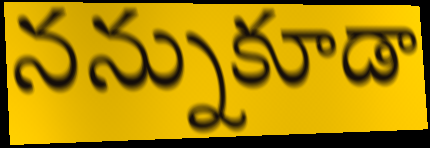
నన్నుకూడా